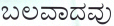
ಬಲವಾದವು